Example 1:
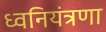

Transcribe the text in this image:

ध्वनियंत्रणा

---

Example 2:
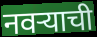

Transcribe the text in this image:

नवऱ्याची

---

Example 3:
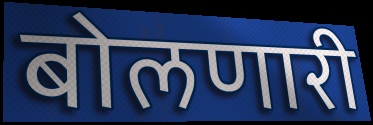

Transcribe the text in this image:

बोलणारी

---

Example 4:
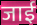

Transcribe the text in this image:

जाई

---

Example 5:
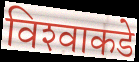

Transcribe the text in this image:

विश्वाकडे